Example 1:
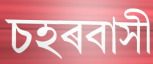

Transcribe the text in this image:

চহৰবাসী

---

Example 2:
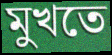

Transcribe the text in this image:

মুখতে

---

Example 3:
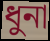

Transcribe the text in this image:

ধুনা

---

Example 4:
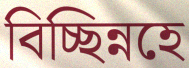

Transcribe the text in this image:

বিচ্ছিন্নহে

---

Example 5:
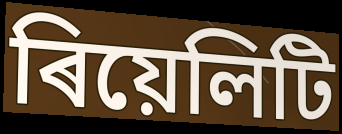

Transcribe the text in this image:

ৰিয়েলিটি